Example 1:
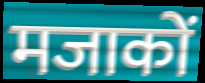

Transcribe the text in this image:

मजाकों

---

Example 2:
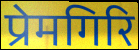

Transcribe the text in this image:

प्रेमगिरि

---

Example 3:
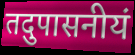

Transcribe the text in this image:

तदुपासनीयं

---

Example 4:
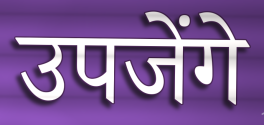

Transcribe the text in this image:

उपजेंगे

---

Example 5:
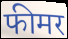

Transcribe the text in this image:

फीमर